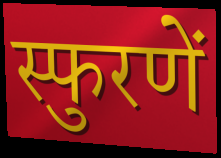
स्फुरणें